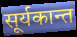
सूर्यकान्त